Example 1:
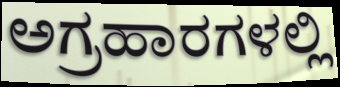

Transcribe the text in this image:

ಅಗ್ರಹಾರಗಳಲ್ಲಿ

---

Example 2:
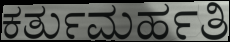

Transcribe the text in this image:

ಕರ್ತುಮರ್ಹತಿ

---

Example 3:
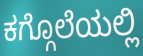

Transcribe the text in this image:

ಕಗ್ಗೊಲೆಯಲ್ಲಿ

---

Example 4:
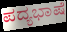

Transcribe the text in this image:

ಪದ್ಯಭಾಷೆ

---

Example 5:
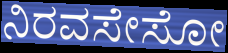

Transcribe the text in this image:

ನಿರವಸೇಸೋ